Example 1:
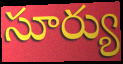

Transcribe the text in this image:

సూర్యు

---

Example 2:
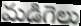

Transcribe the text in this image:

మడిగెలు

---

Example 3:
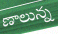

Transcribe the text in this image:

ణాలున్న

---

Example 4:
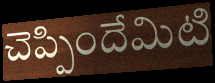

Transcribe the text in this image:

చెప్పిందేమిటి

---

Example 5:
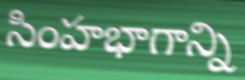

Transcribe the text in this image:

సింహభాగాన్ని